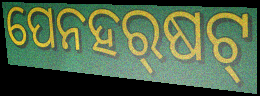
ପେନହର୍‍ଷଟ୍